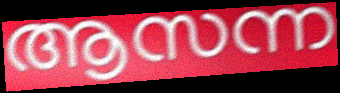
ആസന്ന